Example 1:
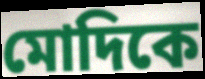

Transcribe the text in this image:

মোদিকে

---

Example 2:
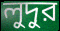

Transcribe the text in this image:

লুদুর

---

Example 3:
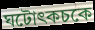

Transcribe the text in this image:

ঘটোৎকচকে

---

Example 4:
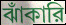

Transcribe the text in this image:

ঝাঁকারি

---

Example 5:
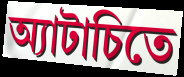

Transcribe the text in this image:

অ্যাটাচিতে